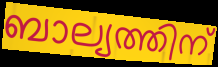
ബാല്യത്തിന്